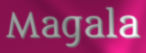
Magala